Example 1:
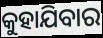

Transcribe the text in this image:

କୁହାଯିବାର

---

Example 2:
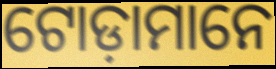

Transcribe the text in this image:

ଟୋଡ଼ାମାନେ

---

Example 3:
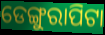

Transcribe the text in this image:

ଡେଙ୍ଗୁରାପିଟା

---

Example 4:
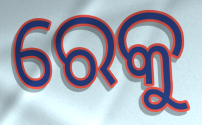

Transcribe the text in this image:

ରେକୁ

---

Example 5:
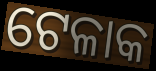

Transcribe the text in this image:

ଟେଳାକ